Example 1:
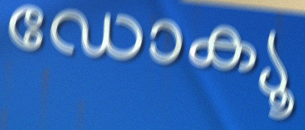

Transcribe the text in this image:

ഡോക്യൂ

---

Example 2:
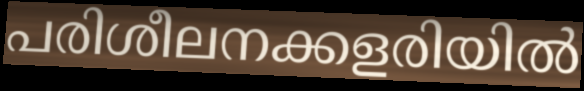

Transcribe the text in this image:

പരിശീലനക്കളരിയിൽ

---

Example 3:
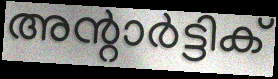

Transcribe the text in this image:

അന്റാർട്ടിക്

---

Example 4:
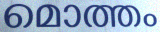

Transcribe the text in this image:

മൊത്തം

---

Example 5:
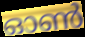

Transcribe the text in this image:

ഓൺ